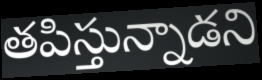
తపిస్తున్నాడని